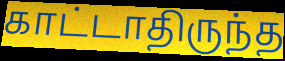
காட்டாதிருந்த